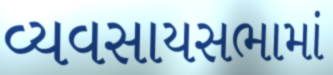
વ્યવસાયસભામાં